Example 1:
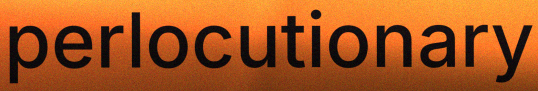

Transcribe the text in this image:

perlocutionary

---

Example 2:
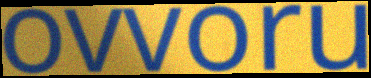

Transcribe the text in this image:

ovvoru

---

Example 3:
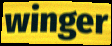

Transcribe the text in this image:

winger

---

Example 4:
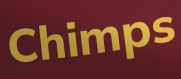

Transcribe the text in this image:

Chimps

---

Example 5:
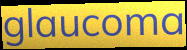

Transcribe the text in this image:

glaucoma